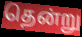
தென்று